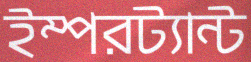
ইম্পরট্যান্ট